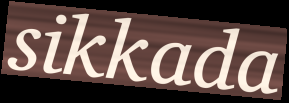
sikkada